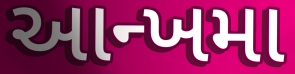
આન્ખમા